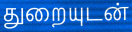
துறையுடன்